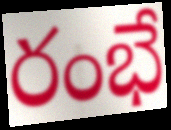
రంభే